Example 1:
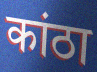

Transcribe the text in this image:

कांठा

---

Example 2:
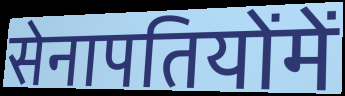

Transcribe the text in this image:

सेनापतियोंमें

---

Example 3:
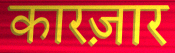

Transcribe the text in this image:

कारज़ार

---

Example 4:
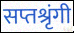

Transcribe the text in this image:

सप्तश्रृंगी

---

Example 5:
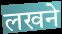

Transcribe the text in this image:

लखने